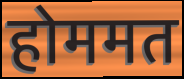
होममत